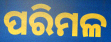
ପରିମଳ